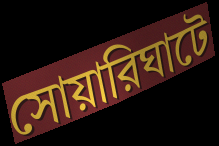
সোয়ারিঘাটে